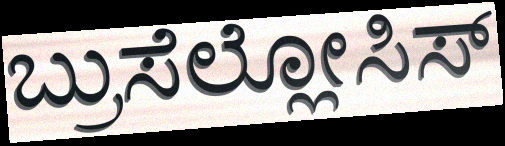
ಬ್ರುಸೆಲ್ಲೋಸಿಸ್